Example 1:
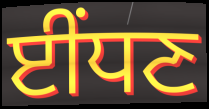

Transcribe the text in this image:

ਈਂਧਣ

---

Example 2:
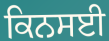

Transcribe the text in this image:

ਕਿਨਸਈ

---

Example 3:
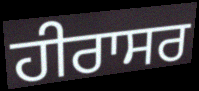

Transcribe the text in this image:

ਹੀਰਾਸਰ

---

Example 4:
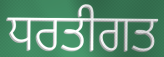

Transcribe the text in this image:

ਧਰਤੀਗਤ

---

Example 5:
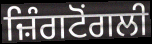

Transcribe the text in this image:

ਜ਼ਿੰਗਟੋਂਗਲੀ